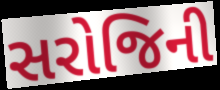
સરોજિની